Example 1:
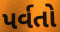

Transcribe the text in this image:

પર્વતો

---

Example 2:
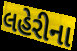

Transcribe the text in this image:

લહેરીના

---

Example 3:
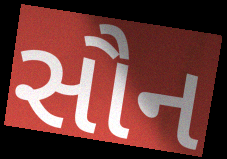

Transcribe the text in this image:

સૌન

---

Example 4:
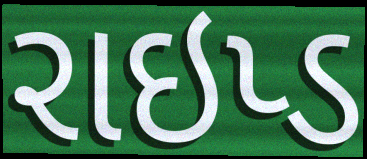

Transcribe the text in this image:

રાઇપ્ડ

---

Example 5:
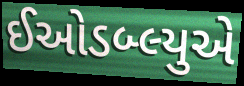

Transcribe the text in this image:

ઈઓડબ્લ્યુએ